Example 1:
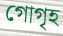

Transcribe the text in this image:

গোগৃহ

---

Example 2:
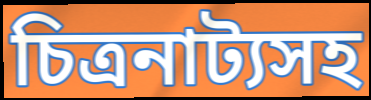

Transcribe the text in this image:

চিত্রনাট্যসহ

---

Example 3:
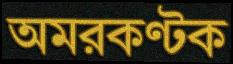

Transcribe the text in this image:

অমরকণ্টক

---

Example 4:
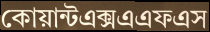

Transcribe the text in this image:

কোয়ান্টএক্সএএফএস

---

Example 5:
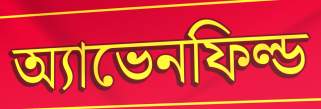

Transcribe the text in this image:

অ্যাভেনফিল্ড